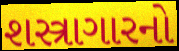
શસ્ત્રાગારનો